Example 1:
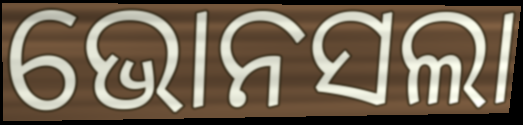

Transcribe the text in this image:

ଭୋନସଲା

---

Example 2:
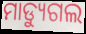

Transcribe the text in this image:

ମାଡ୍ୟୁଗଲ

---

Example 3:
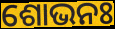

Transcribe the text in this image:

ଶୋଭନଃ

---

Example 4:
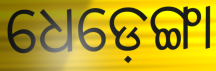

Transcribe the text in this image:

ଧେଡ଼େଙ୍ଗା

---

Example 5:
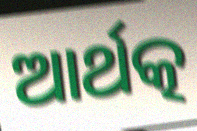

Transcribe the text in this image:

ଆର୍ଥତ୍କ